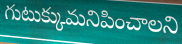
గుటుక్కుమనిపించాలని